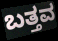
ಬತ್ತವ